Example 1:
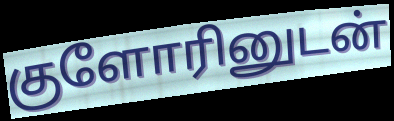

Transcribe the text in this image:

குளோரினுடன்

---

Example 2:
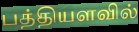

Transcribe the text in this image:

பத்தியளவில்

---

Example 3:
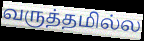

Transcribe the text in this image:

வருத்தமில்ல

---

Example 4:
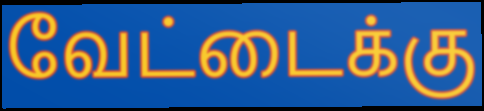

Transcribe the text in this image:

வேட்டைக்கு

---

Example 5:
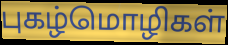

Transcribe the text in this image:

புகழ்மொழிகள்